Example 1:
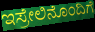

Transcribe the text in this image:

ಇಸ್ರೇಲಿನೊಂದಿಗೆ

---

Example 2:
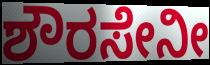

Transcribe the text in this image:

ಶೌರಸೇನೀ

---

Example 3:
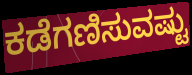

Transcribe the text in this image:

ಕಡೆಗಣಿಸುವಷ್ಟು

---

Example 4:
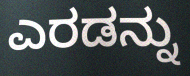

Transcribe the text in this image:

ಎರಡನ್ನು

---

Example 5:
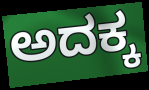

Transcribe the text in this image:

ಅದಕ್ಕ